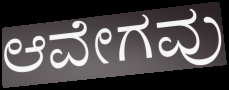
ಆವೇಗವು